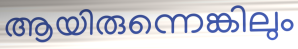
ആയിരുന്നെങ്കിലും